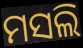
ମସଲି